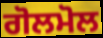
ਗੋਲਮੋਲ